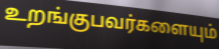
உறங்குபவர்களையும்